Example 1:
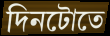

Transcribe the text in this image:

দিনটোতে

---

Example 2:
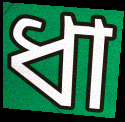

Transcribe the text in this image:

ধা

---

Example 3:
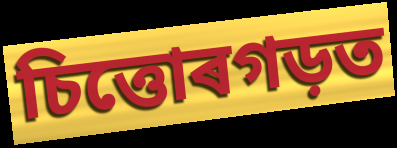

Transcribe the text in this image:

চিত্তোৰগড়ত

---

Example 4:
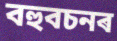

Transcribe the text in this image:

বহুবচনৰ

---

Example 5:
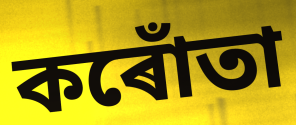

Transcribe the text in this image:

কৰোঁতা